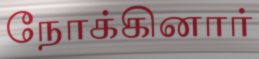
நோக்கினார்